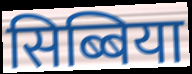
सिब्बिया